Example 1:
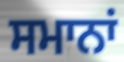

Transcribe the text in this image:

ਸਮਾਨਾਂ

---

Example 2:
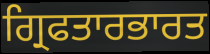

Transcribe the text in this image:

ਗ੍ਰਿਫਤਾਰਭਾਰਤ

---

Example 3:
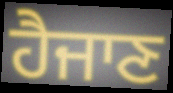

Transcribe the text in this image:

ਹੈਜਾਣ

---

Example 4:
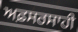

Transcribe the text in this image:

ਅਫ਼ਸਰਸਾਹੀ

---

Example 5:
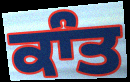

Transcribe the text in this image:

ਕਾੰਤ